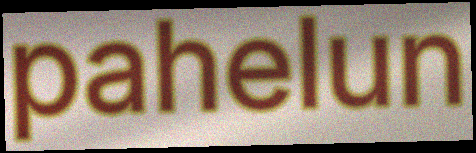
pahelun